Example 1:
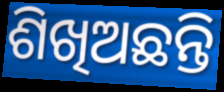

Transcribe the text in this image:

ଶିଖିଅଛନ୍ତି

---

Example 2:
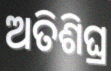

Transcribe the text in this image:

ଅତିଶିଘ୍ର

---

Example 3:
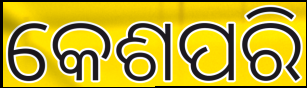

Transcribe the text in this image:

କେଶପରି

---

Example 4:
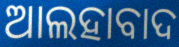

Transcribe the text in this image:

ଆଲହାବାଦ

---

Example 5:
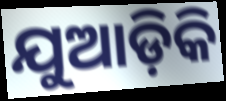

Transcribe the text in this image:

ଯୁଆଡ଼ିକି